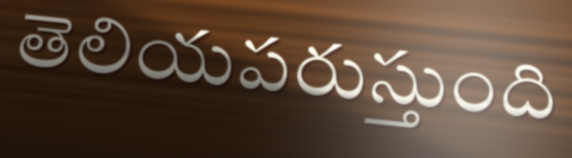
తెలియపరుస్తుంది